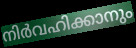
നിർവഹിക്കാനും